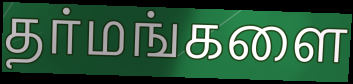
தர்மங்களை